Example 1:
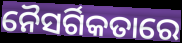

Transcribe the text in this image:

ନୈସର୍ଗିକତାରେ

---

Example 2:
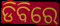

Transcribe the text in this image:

ଡିବିରେ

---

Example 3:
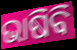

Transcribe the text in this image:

ଭାଷିବି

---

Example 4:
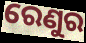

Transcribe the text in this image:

ରେଣୁର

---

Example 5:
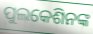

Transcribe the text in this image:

ପୁଲକେଶିନଙ୍କ